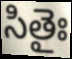
సితైః